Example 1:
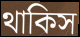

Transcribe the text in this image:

থাকিস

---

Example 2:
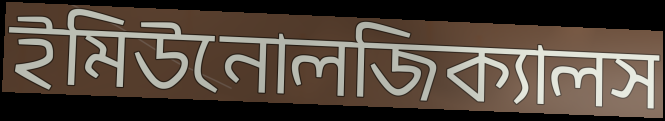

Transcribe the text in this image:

ইমিউনোলজিক্যালস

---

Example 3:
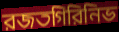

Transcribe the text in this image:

রজতগিরিনিভ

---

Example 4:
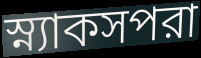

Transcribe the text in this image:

স্ন্যাকসপরা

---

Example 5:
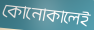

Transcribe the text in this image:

কোনোকালেই